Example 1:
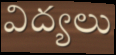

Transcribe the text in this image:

విద్యలు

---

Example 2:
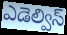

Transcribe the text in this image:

ఎడెల్విస్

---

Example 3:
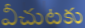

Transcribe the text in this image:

వీచుటకు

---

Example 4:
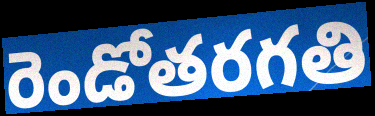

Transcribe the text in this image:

రెండోతరగతి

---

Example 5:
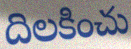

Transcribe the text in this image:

దిలకించు